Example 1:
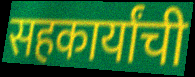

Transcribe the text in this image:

सहकार्यांची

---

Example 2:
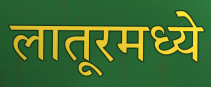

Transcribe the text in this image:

लातूरमध्ये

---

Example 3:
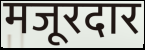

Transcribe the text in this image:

मजूरदार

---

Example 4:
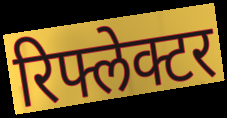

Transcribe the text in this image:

रिफ्लेक्टर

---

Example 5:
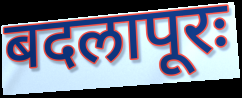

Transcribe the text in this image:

बदलापूरः